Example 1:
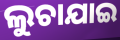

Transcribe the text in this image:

ଲୁଚାଯାଇ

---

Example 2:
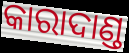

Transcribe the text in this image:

କାରାଦାଣ୍ଡ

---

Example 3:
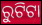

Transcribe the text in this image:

ରୁଟିଟା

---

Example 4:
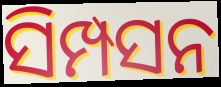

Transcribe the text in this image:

ସିମ୍ପସନ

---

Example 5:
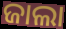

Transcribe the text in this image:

ଜାଲା